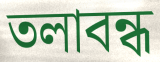
তলাবন্ধ